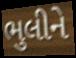
ભુલીને